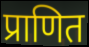
प्राणित